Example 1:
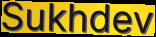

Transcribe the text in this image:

Sukhdev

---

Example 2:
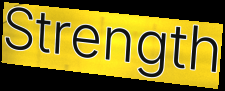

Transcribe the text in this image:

Strength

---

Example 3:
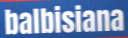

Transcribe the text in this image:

balbisiana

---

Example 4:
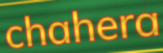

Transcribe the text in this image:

chahera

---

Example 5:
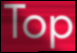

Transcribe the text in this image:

Top